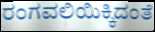
ರಂಗವಲಿಯಿಕ್ಕಿದಂತೆ